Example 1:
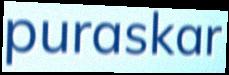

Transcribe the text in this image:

puraskar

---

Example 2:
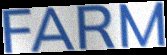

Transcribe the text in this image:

FARM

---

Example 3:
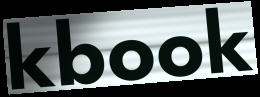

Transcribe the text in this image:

kbook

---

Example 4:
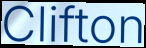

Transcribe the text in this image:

Clifton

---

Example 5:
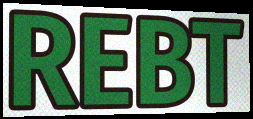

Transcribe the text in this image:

REBT